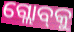
ଗ୍ଲୋବ୍‌କୁ